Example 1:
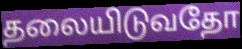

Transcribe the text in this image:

தலையிடுவதோ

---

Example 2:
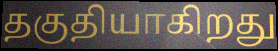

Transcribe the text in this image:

தகுதியாகிறது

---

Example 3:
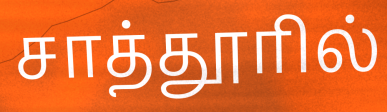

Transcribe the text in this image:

சாத்தூரில்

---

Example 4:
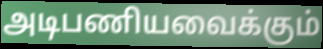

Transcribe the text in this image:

அடிபணியவைக்கும்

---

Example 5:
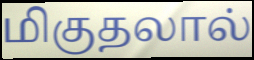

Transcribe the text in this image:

மிகுதலால்